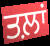
ਤਲ਼ਾਂ